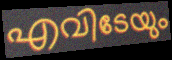
എവിടേയും